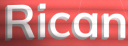
Rican